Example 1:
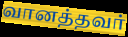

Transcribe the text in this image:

வானத்தவர்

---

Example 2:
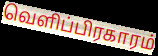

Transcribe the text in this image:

வெளிப்பிரகாரம்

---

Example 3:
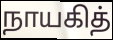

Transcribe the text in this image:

நாயகித்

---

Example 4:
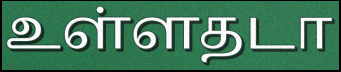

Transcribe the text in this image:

உள்ளதடா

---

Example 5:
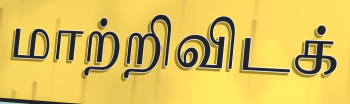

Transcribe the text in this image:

மாற்றிவிடக்